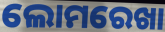
ଲୋମରେଖା